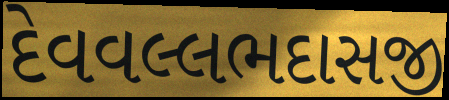
દેવવલ્લભદાસજી